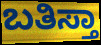
ಬತಿಸ್ತಾ